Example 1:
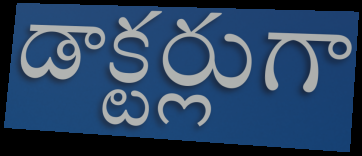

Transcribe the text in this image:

డాక్టర్లుగా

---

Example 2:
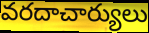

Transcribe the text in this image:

వరదాచార్యులు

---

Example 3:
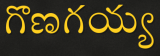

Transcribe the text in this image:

గొణగయ్య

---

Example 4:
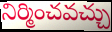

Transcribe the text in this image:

నిర్మించవచ్చు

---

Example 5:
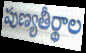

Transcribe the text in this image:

పుణ్యతీర్థాల